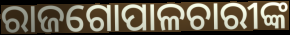
ରାଜଗୋପାଳଚାରୀଙ୍କ